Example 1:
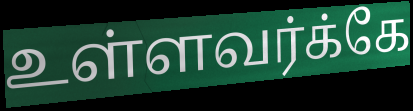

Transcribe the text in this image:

உள்ளவர்க்கே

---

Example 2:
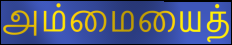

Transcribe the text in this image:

அம்மையைத்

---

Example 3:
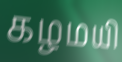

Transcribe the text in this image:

கழமயி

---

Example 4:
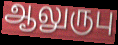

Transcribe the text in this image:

ஆலுருபு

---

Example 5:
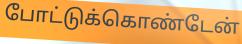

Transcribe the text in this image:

போட்டுக்கொண்டேன்